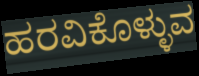
ಹರವಿಕೊಳ್ಳುವ